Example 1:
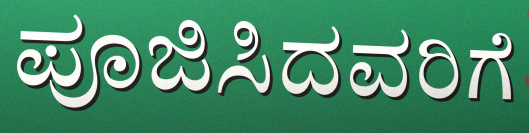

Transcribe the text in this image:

ಪೂಜಿಸಿದವರಿಗೆ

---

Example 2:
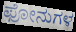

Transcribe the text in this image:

ಫೋನುಗಳ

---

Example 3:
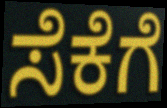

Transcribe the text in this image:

ಸೆಕೆಗೆ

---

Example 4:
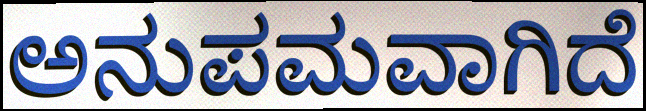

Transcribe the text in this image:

ಅನುಪಮವಾಗಿದೆ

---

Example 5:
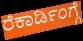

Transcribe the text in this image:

ರೆಕಾರ್ಡಿಂಗ್ಗೆ